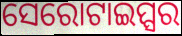
ସେରୋଟାଇପ୍ସର